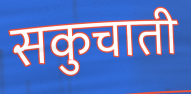
सकुचाती